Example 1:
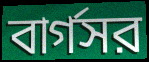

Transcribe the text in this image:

বার্গসর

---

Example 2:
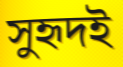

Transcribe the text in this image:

সুহৃদই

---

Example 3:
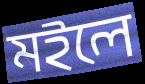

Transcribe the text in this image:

মইলে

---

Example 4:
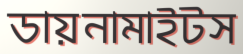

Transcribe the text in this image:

ডায়নামাইটস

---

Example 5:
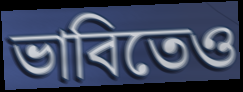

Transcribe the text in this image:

ভাবিতেও